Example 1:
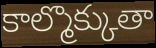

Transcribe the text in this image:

కాల్మొక్కుతా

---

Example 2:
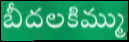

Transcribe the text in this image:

బీదలకిమ్ము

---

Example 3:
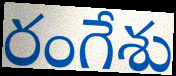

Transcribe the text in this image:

రంగేశు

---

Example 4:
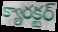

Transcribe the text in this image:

క్యారక్టర్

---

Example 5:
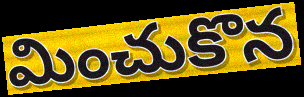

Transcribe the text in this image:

మించుకొన